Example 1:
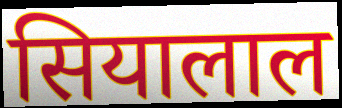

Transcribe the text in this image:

सियालाल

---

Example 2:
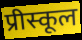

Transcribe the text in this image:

प्रीस्कूल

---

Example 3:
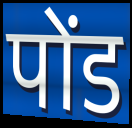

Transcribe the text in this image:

पोंड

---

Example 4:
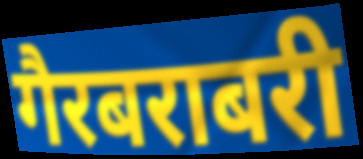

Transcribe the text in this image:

गैरबराबरी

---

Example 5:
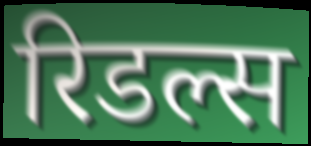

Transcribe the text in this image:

रिडल्स